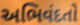
અભિવંદતો